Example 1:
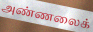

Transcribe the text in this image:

அண்ணலைக்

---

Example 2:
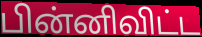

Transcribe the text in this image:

பின்னிவிட்ட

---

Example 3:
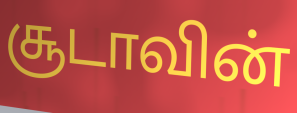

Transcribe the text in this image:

சூடாவின்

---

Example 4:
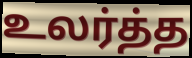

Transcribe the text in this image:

உலர்த்த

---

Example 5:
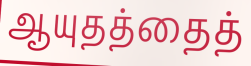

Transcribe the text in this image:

ஆயுதத்தைத்